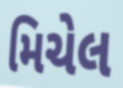
મિચેલ